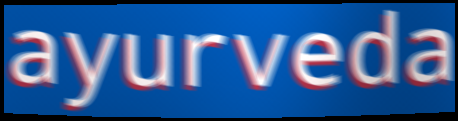
ayurveda